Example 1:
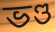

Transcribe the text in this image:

ভণ্ড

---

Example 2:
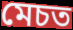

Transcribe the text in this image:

মেচত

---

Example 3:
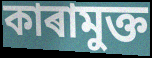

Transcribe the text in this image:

কাৰামুক্ত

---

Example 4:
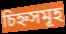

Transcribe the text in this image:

চিহ্নসমূহ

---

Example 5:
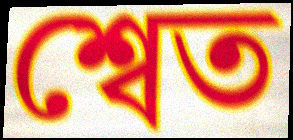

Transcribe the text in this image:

শ্বেত